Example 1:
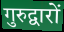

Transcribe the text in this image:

गुरुद्वारों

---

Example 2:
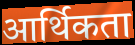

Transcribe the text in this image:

आर्थिकता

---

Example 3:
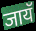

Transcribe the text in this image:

जायॅ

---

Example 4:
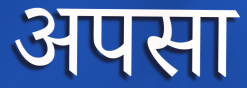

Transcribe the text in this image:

अपसा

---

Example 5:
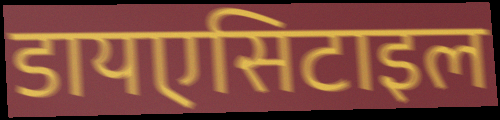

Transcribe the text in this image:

डायएसिटाइल